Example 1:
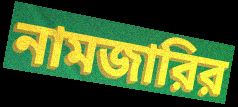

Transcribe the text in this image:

নামজারির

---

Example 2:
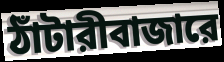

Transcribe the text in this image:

ঠাঁটারীবাজারে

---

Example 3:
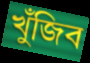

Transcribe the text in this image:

খুঁজিব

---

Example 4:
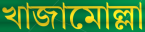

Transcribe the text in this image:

খাজামোল্লা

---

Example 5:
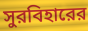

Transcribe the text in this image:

সুরবিহারের